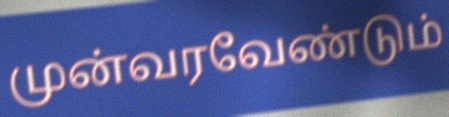
முன்வரவேண்டும்